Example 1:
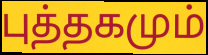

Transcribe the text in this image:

புத்தகமும்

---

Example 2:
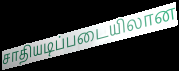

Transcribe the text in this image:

சாதியடிப்படையிலான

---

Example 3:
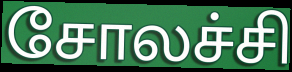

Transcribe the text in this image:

சோலச்சி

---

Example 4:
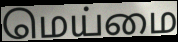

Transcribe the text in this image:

மெய்மை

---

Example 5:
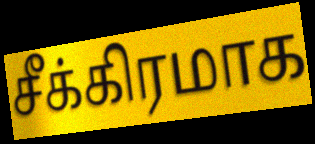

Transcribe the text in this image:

சீக்கிரமாக